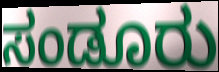
ಸಂಡೂರು